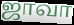
ஜாவா